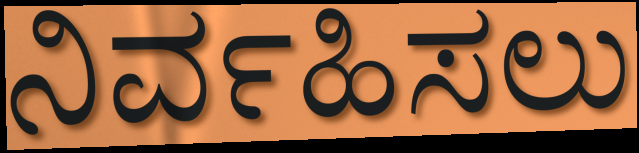
ನಿರ್ವಹಿಸಲು